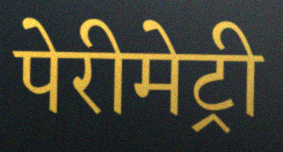
पेरीमेट्री